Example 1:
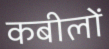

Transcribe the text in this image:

कबीलों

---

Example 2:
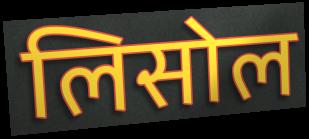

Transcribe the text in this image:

लिसोल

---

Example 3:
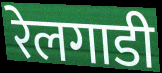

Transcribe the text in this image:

रेलगाडी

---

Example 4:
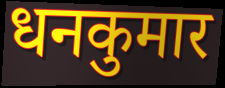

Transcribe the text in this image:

धनकुमार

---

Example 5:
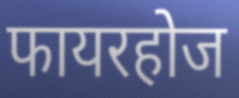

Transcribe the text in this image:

फायरहोज